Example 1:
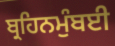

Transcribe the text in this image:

ਬ੍ਰਹਿਨਮੁੰਬਈ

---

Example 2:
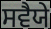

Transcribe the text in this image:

ਸਵੈਯੇ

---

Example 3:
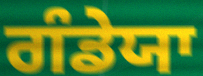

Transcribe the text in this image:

ਗੰਡੇਯਾ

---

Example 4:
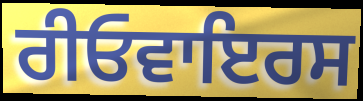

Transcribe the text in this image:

ਰੀਓਵਾਇਰਸ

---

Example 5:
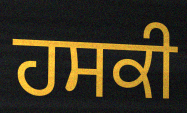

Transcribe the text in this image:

ਹਸਕੀ